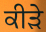
ਕੀੜੇ